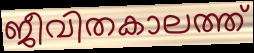
ജീവിതകാലത്ത്